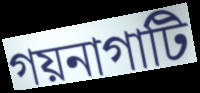
গয়নাগাটি